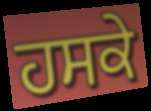
ਹਸਕੇ